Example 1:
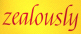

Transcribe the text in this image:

zealously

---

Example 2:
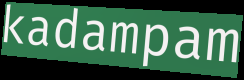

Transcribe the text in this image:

kadampam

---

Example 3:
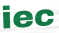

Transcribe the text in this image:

iec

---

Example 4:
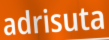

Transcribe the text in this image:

adrisuta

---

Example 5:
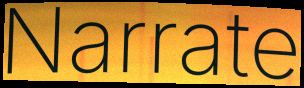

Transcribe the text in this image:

Narrate